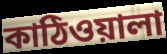
কাঠিওয়ালা